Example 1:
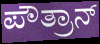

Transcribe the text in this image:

ಪೌತ್ರಾನ್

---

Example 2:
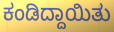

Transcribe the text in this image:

ಕಂಡಿದ್ದಾಯಿತು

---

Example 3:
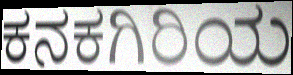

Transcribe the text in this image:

ಕನಕಗಿರಿಯ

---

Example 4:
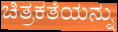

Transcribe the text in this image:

ಚಿತ್ರಕತೆಯನ್ನು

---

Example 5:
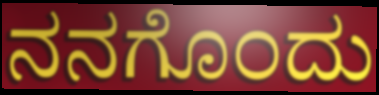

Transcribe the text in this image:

ನನಗೊಂದು